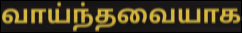
வாய்ந்தவையாக